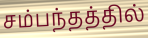
சம்பந்தத்தில்